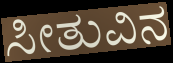
ಸೀತುವಿನ